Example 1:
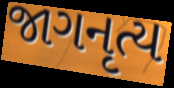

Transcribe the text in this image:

જાગનૃત્ય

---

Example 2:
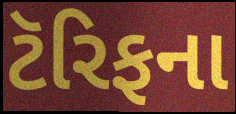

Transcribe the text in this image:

ટૅરિફના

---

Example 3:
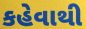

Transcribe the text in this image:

કહેવાથી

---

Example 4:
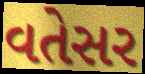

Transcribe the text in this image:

વતેસર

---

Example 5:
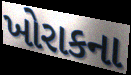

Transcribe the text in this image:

ખોરાકના